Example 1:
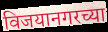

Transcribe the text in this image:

विजयानगरच्या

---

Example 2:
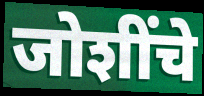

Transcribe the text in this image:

जोशींचे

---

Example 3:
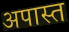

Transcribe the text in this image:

अपास्त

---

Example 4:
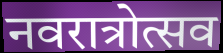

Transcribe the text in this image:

नवरात्रोत्सव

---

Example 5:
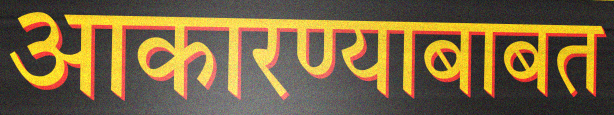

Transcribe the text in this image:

आकारण्याबाबत